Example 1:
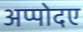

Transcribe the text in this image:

अप्पोदए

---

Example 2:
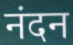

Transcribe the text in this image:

नंदन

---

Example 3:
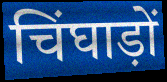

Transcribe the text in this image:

चिंघाड़ों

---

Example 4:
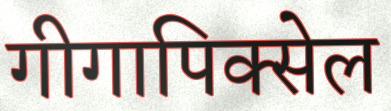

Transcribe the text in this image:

गीगापिक्सेल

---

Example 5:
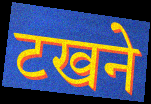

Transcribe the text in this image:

टखने